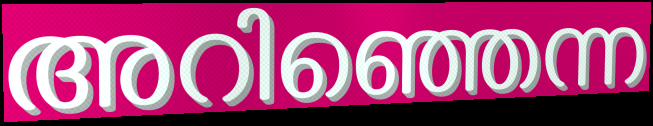
അറിഞ്ഞെന്ന